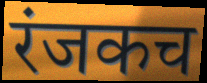
रंजकच